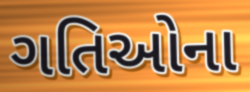
ગતિઓના